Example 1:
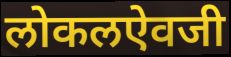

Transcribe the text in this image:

लोकलऐवजी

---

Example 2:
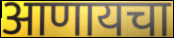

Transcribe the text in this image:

आणायचा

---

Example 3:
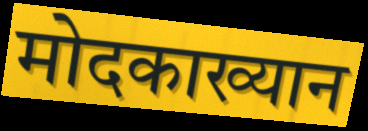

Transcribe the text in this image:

मोदकाख्यान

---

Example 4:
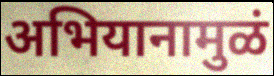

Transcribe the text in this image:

अभियानामुळं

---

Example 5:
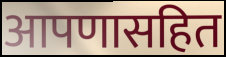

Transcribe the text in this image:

आपणासहित